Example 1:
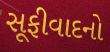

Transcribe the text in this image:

સૂફીવાદનો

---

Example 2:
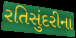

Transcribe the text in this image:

રતિસુંદરીના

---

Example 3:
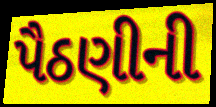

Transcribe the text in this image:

પૈઠણીની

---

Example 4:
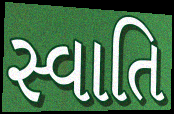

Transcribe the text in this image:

સ્વાતિ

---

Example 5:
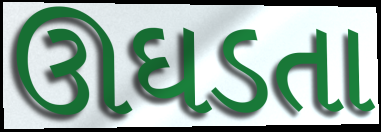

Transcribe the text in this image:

ઊઘડતા